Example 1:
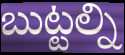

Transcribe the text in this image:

బుట్టల్ని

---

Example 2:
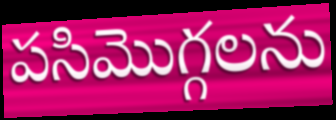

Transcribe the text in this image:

పసిమొగ్గలను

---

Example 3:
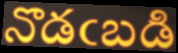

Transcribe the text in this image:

నొడఁబడి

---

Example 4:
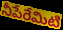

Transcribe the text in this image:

నీపేరేమిటి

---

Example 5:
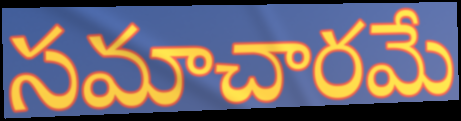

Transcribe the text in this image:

సమాచారమే